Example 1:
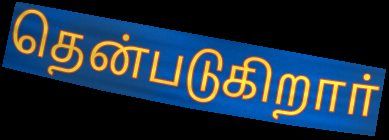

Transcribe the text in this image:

தென்படுகிறார்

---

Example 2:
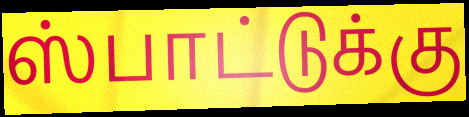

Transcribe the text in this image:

ஸ்பாட்டுக்கு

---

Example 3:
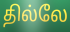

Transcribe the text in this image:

தில்லே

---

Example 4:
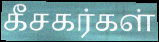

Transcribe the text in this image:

கீசகர்கள்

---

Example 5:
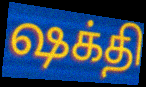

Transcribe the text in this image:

ஷக்தி